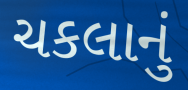
ચકલાનું